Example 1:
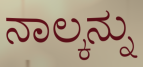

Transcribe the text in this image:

ನಾಲ್ಕನ್ನು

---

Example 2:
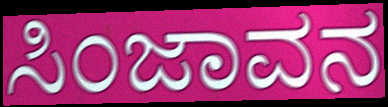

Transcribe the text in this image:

ಸಿಂಜಾವನ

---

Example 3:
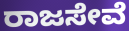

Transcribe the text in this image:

ರಾಜಸೇವೆ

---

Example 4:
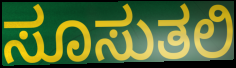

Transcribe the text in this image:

ಸೂಸುತಲಿ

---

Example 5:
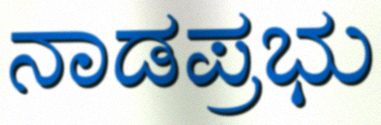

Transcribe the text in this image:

ನಾಡಪ್ರಭು